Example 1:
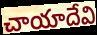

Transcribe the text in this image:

చాయాదేవి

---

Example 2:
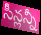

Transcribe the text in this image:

సీన్లన్నీ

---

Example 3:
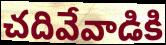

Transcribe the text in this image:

చదివేవాడికి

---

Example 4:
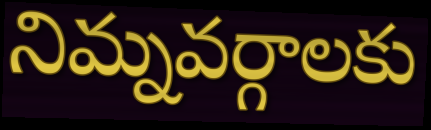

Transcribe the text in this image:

నిమ్నవర్గాలకు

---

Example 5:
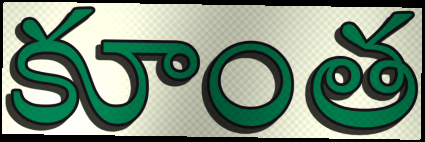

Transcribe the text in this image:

కూంత